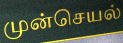
முன்செயல்